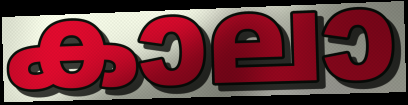
കാലാ